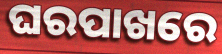
ଘରପାଖରେ